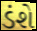
ડંશે